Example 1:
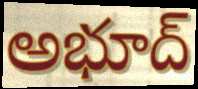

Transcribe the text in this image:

అభూద్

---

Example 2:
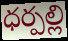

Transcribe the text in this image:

ధర్పల్లి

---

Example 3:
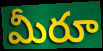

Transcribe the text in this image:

మీరూ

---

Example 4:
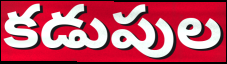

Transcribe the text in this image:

కడుపుల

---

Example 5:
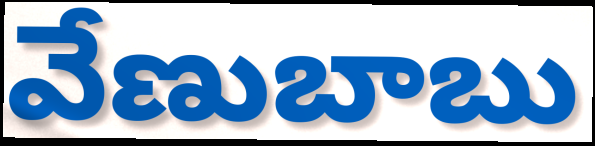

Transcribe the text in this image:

వేణుబాబు